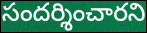
సందర్శించారని